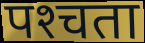
पश्चता